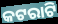
କଟରାଟି